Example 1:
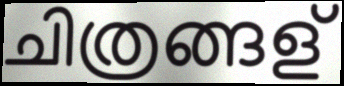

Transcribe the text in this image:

ചിത്രങ്ങള്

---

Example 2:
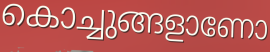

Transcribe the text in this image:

കൊച്ചുങ്ങളാണോ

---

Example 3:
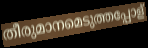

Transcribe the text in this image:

തീരുമാനമെടുത്തപ്പോള്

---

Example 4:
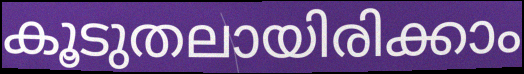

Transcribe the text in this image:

കൂടുതലായിരിക്കാം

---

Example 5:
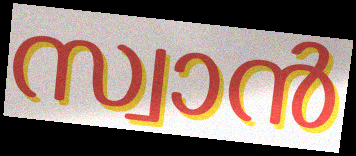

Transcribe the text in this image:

സ്വാൻ